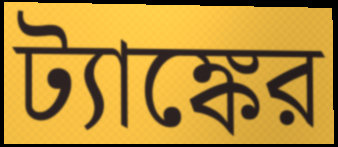
ট্যাঙ্কের